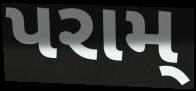
પરામ્